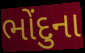
ભોંદુના